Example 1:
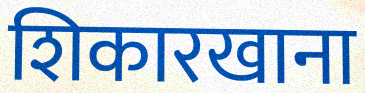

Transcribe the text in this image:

शिकारखाना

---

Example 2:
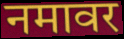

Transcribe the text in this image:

नमावर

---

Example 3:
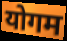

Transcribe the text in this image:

योगम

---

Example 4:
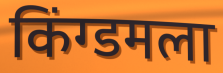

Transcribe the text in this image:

किंग्डमला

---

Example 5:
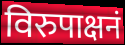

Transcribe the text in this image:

विरुपाक्षनं